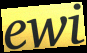
ewi